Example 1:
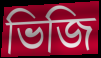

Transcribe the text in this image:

ভিজি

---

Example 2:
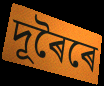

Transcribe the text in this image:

দূৰৈৰে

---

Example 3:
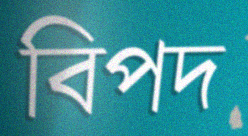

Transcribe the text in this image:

বিপদ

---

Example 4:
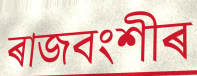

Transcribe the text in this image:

ৰাজবংশীৰ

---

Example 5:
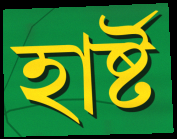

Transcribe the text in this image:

হাৰ্ষ্ট